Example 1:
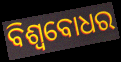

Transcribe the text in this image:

ବିଶ୍ବବୋଧର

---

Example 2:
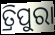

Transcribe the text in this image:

ତ୍ରିପୁରା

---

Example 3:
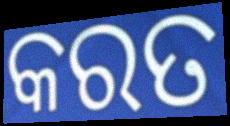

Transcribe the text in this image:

କରତ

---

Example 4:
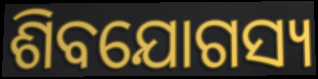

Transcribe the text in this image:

ଶିବଯୋଗସ୍ୟ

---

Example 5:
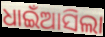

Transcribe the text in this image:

ଧାଇଁଆସିଲା